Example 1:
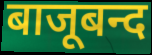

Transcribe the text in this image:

बाजूबन्द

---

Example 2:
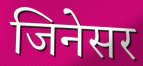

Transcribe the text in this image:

जिनेसर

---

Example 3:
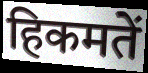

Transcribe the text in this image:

हिकमतें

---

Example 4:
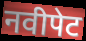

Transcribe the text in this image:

नवीपेट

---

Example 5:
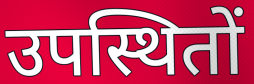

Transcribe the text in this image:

उपस्थितों